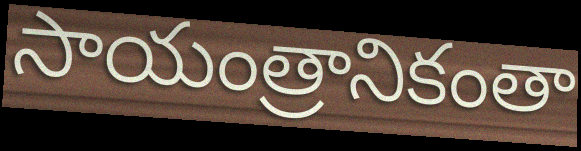
సాయంత్రానికంతా